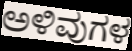
ಅಳಿವುಗಳ